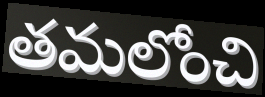
తమలోంచి